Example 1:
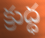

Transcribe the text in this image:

క్రుద్ధ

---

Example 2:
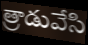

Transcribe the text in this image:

త్రాడువేసి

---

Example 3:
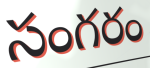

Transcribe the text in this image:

సంగరం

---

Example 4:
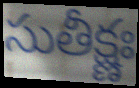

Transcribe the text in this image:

సుతీక్ష్ణః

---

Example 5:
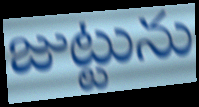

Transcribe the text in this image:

జుట్టును